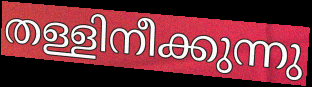
തള്ളിനീക്കുന്നു